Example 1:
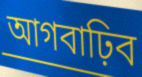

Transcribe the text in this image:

আগবাঢ়িব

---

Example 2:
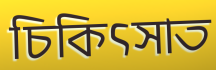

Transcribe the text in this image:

চিকিৎসাত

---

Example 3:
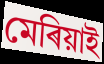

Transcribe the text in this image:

মেৰিয়াই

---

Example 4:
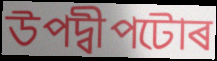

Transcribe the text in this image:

উপদ্বীপটোৰ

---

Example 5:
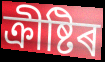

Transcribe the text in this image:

ক্ৰীষ্টিৰ